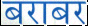
बराबर